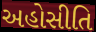
અહોસીતિ